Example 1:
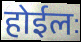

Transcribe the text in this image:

होईलः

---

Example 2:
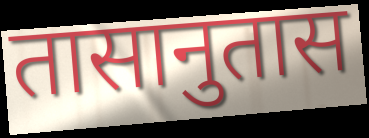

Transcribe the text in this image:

तासानुतास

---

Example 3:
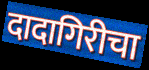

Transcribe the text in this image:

दादागिरीचा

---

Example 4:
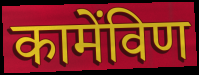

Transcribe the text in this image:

कामेंविण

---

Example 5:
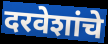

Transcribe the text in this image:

दरवेशांचे